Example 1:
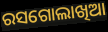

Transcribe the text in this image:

ରସଗୋଲାଖିଆ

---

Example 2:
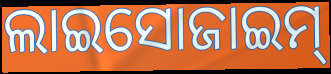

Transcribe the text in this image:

ଲାଇସୋଜାଇମ୍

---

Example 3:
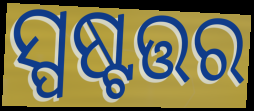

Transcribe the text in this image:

ସ୍ପଷ୍ଟତ୍ତର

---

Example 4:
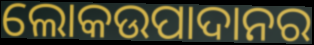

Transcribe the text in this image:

ଲୋକଉପାଦାନର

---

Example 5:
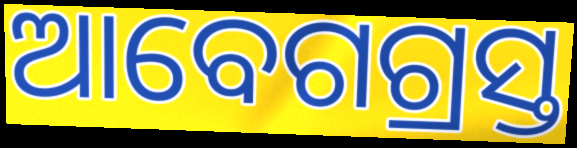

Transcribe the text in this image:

ଆବେଗଗ୍ରସ୍ତ